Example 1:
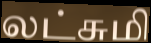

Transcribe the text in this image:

லட்சுமி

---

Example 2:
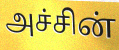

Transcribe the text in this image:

அச்சின்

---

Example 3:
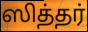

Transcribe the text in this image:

ஸித்தர்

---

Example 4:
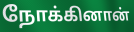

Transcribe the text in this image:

நோக்கினான்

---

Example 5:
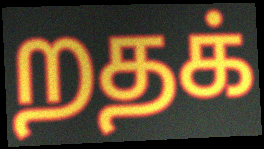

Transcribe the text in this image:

றதக்